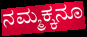
ನಮ್ಮಕ್ಕನೂ